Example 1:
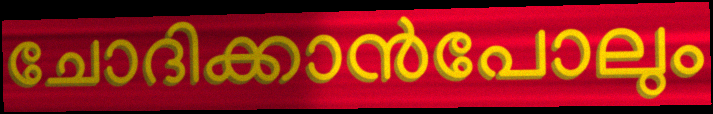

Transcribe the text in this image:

ചോദിക്കാൻപോലും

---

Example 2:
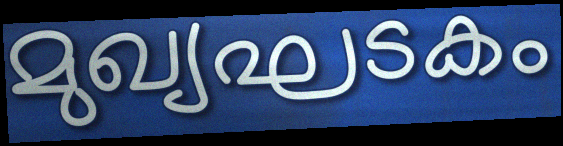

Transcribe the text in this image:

മുഖ്യഘടകം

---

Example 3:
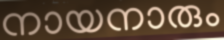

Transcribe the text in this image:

നായനാരും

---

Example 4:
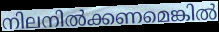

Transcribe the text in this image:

നിലനിൽക്കണമെങ്കിൽ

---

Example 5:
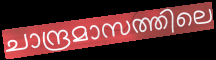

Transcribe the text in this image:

ചാന്ദ്രമാസത്തിലെ